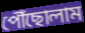
পৌঁছোলাম